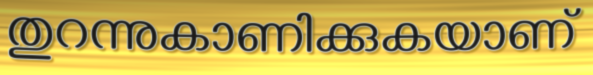
തുറന്നുകാണിക്കുകയാണ്